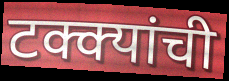
टक्क्यांची